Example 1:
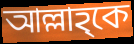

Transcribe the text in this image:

আল্লাহ্কে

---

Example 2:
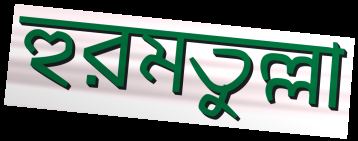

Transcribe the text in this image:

হুরমতুল্লা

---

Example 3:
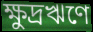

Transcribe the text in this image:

ক্ষুদ্রঋণে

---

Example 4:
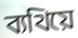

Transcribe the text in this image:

ব্যথিয়ে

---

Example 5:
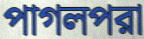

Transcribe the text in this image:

পাগলপরা